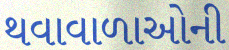
થવાવાળાઓની